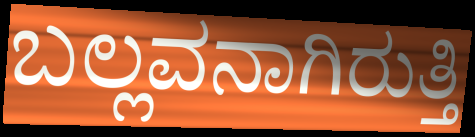
ಬಲ್ಲವನಾಗಿರುತ್ತಿ